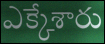
ఎక్కేశారు